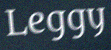
Leggy